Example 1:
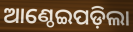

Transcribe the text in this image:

ଆଣ୍ଠେଇପଡ଼ିଲା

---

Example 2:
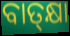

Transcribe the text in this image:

ବାତ୍କ୍ଷା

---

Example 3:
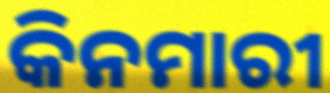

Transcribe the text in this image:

କିନମାରୀ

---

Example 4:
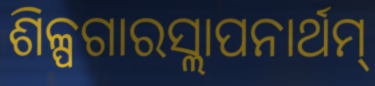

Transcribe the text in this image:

ଶିଳ୍ପଗାରସ୍ଲାପନାର୍ଥମ୍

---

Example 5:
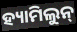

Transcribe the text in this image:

ହ୍ୟାମିଲୁନ୍